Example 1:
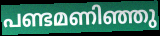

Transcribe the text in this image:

പണ്ടമണിഞ്ഞു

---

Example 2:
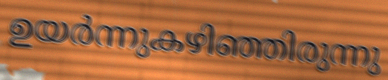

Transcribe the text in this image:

ഉയർന്നുകഴിഞ്ഞിരുന്നു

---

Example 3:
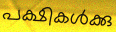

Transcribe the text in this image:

പക്ഷികൾക്കു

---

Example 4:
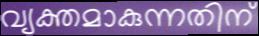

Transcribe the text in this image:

വ്യക്തമാകുന്നതിന്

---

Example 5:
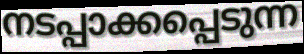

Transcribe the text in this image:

നടപ്പാക്കപ്പെടുന്ന